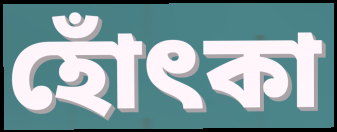
হোঁৎকা